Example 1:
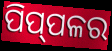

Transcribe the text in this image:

ପିପ୍‌ପଳର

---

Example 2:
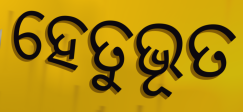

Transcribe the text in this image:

ହେତୁଭୂତ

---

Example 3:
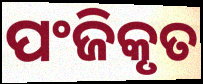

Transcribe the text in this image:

ପଂଜିକୃତ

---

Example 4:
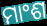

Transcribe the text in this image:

ମାଂଶ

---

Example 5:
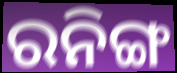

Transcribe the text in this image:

ରନିଙ୍ଗ